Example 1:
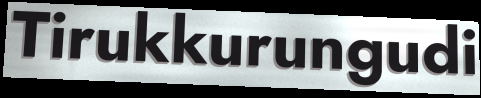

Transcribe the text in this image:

Tirukkurungudi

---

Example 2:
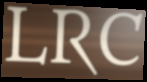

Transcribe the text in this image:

LRC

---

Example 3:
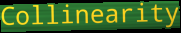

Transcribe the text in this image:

Collinearity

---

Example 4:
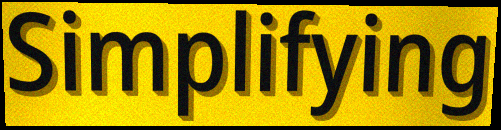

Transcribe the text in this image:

Simplifying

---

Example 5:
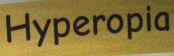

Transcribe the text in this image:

Hyperopia